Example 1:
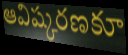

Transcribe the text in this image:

ఆవిష్కరణకూ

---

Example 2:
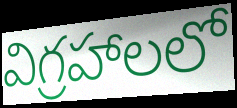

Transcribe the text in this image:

విగ్రహాలలో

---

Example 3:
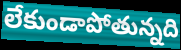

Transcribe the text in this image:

లేకుండాపోతున్నది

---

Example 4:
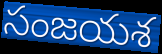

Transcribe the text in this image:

సంజయశ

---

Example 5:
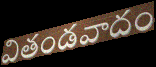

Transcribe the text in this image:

వితండవాదం